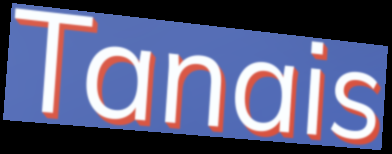
Tanais